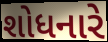
શોધનારે